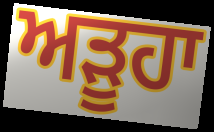
ਅੜੂਹਾ